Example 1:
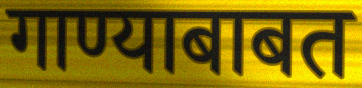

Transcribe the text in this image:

गाण्याबाबत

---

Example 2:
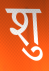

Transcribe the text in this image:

शु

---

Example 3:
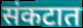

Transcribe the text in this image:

संकटात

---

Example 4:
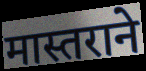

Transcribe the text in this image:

मास्तराने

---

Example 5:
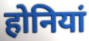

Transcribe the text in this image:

होनियां